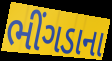
ભીંગડાના